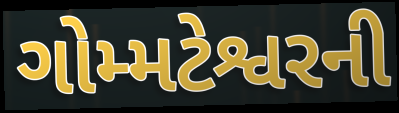
ગોમ્મટેશ્વરની